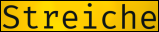
Streiche